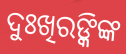
ଦୁଃଖିରଙ୍କିଙ୍କ